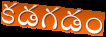
కడగడం